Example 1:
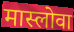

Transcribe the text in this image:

मास्लोवा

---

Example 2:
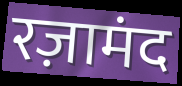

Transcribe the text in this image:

रज़ामंद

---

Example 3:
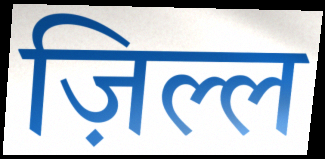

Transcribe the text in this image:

ज़िल्ल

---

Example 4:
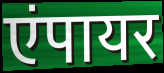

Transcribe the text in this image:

एंपायर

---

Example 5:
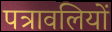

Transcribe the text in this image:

पत्रावलियों